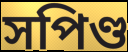
সপিণ্ড